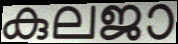
കുലജാ